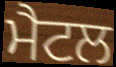
ਮੈਟਲ